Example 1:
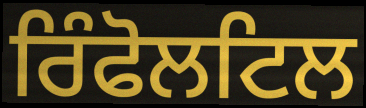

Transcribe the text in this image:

ਰਿੰਫੋਲਟਿਲ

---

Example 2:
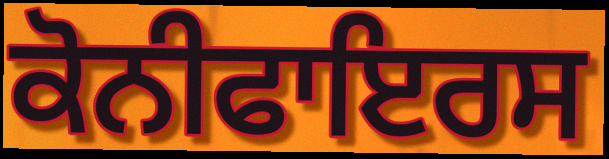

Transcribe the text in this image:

ਕੋਨੀਫਾਇਰਸ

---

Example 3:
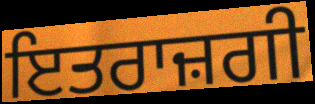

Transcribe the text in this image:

ਇਤਰਾਜ਼ਗੀ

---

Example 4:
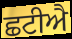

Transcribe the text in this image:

ਛਟੀਐ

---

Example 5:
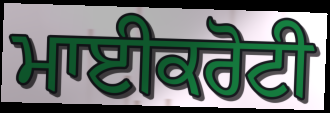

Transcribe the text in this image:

ਮਾਈਕਰੋਟੀ